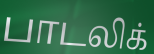
பாடலிக்